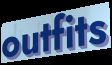
outfits